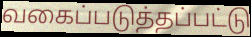
வகைப்படுத்தப்பட்டு